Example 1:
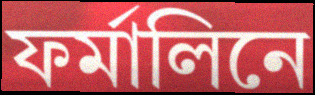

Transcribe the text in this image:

ফর্মালিনে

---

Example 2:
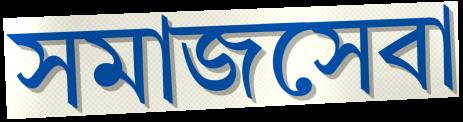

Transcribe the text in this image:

সমাজসেবা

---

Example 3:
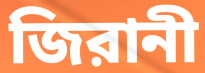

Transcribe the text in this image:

জিরানী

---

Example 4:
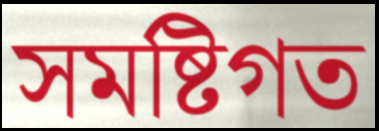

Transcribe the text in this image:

সমষ্টিগত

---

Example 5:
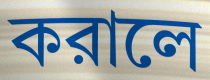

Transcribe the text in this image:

করালে